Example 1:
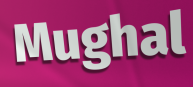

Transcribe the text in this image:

Mughal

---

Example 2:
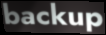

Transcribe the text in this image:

backup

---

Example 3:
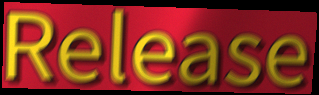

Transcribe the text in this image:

Release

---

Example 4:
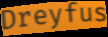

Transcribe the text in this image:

Dreyfus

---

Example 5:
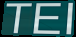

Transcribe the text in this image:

TEI